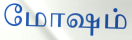
மோஷம்